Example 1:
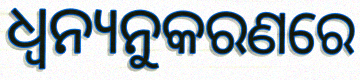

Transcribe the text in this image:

ଧ୍ଵନ୍ୟନୁକରଣରେ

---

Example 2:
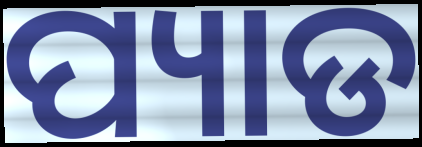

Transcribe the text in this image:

ପ୍ୟାଡ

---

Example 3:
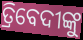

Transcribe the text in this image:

ତ୍ରିବେଦୀଙ୍କୁ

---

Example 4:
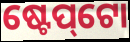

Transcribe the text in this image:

ଷ୍ଟେପ୍‌ଟୋ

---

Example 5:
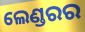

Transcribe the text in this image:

ଲେଣ୍ଡରର